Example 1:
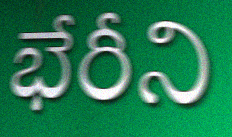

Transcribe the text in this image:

భేరీని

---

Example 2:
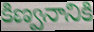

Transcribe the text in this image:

కిణ్వనానికి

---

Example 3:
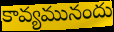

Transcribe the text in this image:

కావ్యమునందు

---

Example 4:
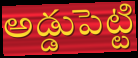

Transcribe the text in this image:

అడ్డుపెట్టి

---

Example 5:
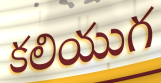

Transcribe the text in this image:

కలియుగ